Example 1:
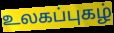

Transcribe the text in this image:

உலகப்புகழ்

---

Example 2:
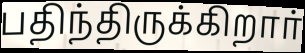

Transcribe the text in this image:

பதிந்திருக்கிறார்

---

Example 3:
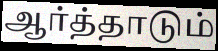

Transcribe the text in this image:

ஆர்த்தாடும்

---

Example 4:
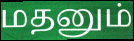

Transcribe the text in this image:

மதனும்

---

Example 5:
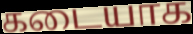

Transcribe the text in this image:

கடையாக